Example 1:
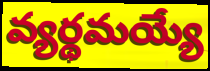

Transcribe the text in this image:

వ్యర్థమయ్యే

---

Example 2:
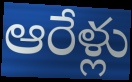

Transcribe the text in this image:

ఆరేళ్లు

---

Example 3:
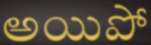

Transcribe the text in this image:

అయిపో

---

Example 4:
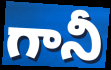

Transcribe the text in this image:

గానీ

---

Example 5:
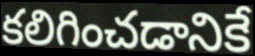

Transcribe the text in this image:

కలిగించడానికే